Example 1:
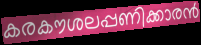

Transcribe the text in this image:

കരകൗശലപ്പണിക്കാരൻ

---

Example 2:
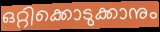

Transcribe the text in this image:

ഒറ്റിക്കൊടുക്കാനും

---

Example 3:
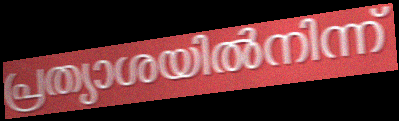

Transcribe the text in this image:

പ്രത്യാശയിൽനിന്ന്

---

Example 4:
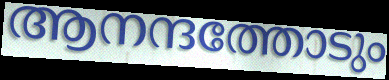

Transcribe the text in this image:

ആനന്ദത്തോടും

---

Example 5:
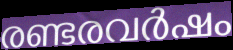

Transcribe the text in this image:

രണ്ടരവർഷം